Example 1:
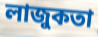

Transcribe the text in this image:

লাজুকতা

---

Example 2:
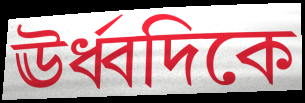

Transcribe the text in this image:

ঊর্ধ্বদিকে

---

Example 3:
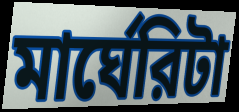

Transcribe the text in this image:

মার্ঘেরিটা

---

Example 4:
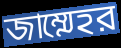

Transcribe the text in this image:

জাম্মেহর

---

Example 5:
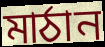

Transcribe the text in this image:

মাঠান